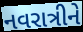
નવરાત્રીને